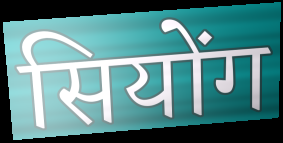
सियोंग